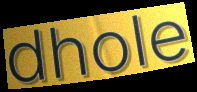
dhole